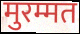
मुरम्मत